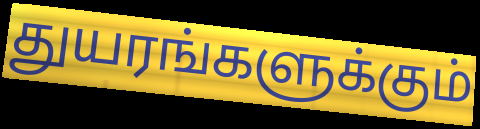
துயரங்களுக்கும்